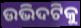
ଉଭିଦଟିକୁ